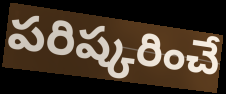
పరిష్కరించే